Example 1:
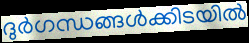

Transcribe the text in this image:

ദുർഗന്ധങ്ങൾക്കിടയിൽ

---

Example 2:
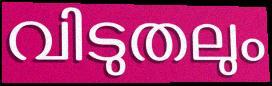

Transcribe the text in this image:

വിടുതലും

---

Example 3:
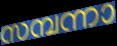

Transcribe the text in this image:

സമ്പന്നാ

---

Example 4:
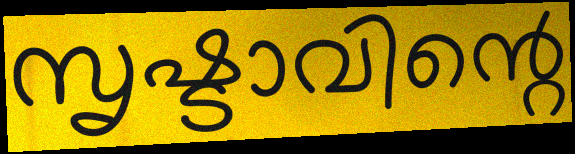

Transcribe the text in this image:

സൃഷ്ടാവിന്റെ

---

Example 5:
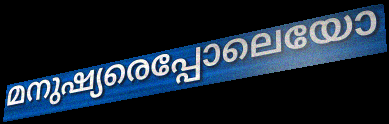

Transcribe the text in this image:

മനുഷ്യരെപ്പോലെയോ